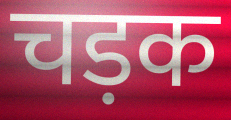
चड़क